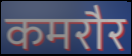
कमरौर